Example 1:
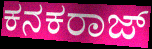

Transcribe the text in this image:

ಕನಕರಾಜ್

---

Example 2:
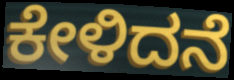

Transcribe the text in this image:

ಕೇಳಿದನೆ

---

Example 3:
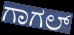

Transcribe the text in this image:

ಗಾಗಲ್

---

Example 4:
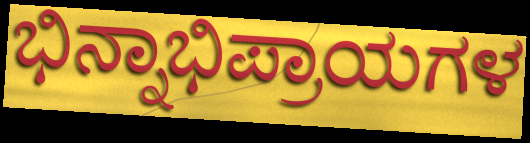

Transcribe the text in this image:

ಭಿನ್ನಾಭಿಪ್ರಾಯಗಳ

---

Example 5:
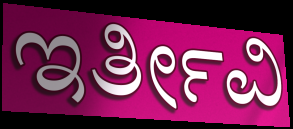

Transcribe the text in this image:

ಇರ್ತೀವಿ